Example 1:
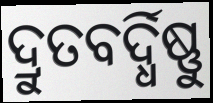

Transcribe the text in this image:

ଦ୍ରୁତବର୍ଦ୍ଧିଷ୍ଣୁ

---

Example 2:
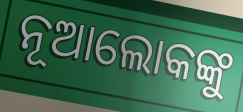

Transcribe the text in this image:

ନୂଆଲୋକଙ୍କୁ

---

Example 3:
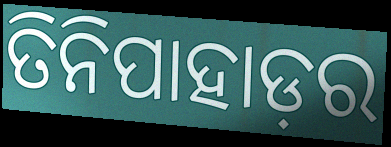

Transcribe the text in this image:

ତିନିପାହାଡ଼ର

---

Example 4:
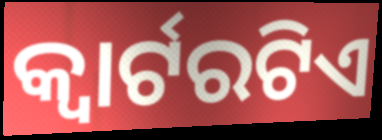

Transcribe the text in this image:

କ୍ୱାର୍ଟରଟିଏ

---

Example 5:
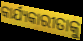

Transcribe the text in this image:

କାର୍ଯ୍ୟକାରୀତାକୁ